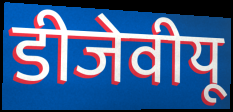
डीजेवीयू